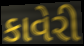
કાવેરી